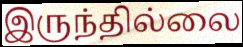
இருந்தில்லை